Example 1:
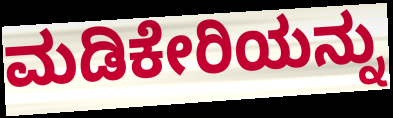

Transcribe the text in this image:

ಮಡಿಕೇರಿಯನ್ನು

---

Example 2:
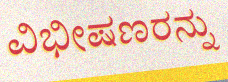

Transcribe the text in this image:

ವಿಭೀಷಣರನ್ನು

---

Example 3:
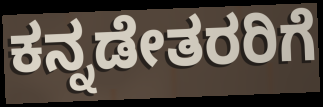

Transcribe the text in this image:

ಕನ್ನಡೇತರರಿಗೆ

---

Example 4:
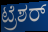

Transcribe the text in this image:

ಟ್ರೆಶರ್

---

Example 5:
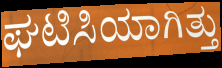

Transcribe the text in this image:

ಘಟಿಸಿಯಾಗಿತ್ತು